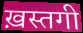
ख़स्तगी